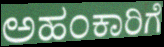
ಅಹಂಕಾರಿಗೆ